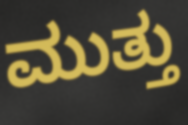
ಮುತ್ತು